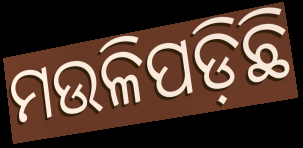
ମଉଳିପଡ଼ିଛି